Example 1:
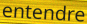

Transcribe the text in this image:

entendre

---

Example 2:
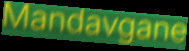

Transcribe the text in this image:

Mandavgane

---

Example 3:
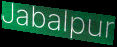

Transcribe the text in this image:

Jabalpur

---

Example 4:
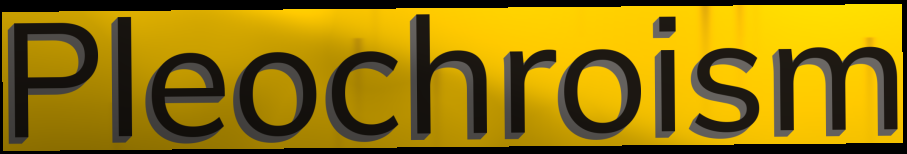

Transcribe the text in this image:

Pleochroism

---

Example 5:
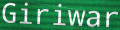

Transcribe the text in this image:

Giriwar